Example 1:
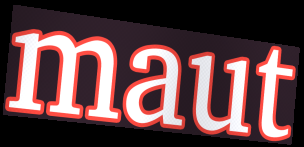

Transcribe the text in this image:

maut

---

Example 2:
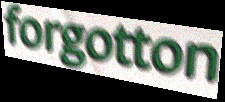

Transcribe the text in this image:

forgotton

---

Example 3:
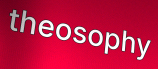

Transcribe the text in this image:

theosophy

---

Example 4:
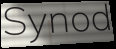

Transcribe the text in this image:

Synod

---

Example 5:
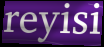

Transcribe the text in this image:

reyisi